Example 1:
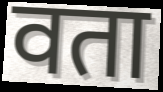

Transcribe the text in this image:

वता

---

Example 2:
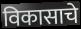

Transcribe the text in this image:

विकासाचे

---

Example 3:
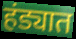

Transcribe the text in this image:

हंड्यात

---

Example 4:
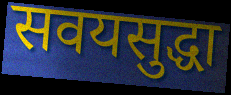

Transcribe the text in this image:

सवयसुद्धा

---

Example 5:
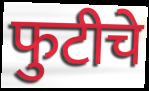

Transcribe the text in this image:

फुटीचे